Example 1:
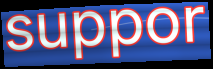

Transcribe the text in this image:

suppor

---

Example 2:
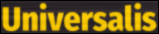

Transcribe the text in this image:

Universalis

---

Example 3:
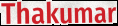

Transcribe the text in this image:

Thakumar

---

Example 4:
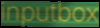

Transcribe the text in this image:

inputbox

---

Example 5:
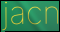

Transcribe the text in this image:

jacn